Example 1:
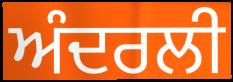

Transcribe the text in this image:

ਅੰਦਰਲੀ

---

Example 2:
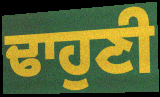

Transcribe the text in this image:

ਢਾਹੁਣੀ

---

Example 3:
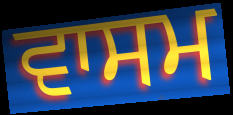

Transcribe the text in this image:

ਵਾਸਮ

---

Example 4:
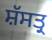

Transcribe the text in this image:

ਸ਼ੱਸਤ੍ਰ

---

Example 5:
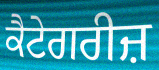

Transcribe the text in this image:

ਕੈਟੇਗਰੀਜ਼